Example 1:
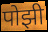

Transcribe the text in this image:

पोझी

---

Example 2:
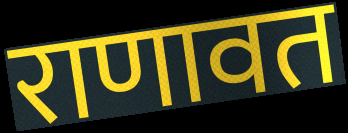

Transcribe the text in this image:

राणावत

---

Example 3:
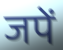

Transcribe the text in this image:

जपें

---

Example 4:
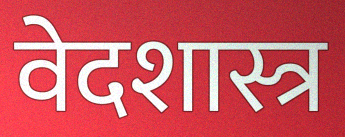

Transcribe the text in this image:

वेदशास्त्र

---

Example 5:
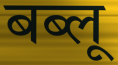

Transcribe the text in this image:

बब्लू